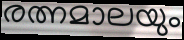
രത്നമാലയും